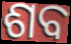
ଶବ